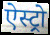
ऐस्ट्रो